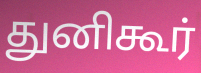
துனிகூர்